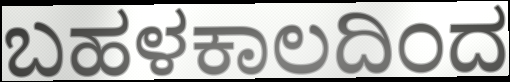
ಬಹಳಕಾಲದಿಂದ